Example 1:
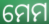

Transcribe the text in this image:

ମେମ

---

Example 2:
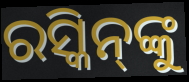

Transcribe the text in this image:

ରସ୍କିନ୍‌ଙ୍କୁ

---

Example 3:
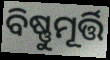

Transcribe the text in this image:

ବିଷ୍ଣୁମୂର୍ତ୍ତି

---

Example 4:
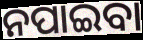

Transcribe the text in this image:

ନପାଇବା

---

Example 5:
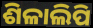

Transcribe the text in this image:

ଶିଳାଲିପି